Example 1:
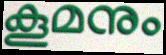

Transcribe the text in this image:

കൂമനും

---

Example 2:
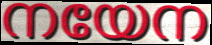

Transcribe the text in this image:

നയേന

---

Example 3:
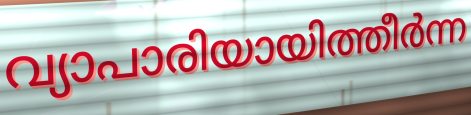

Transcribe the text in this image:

വ്യാപാരിയായിത്തീർന്ന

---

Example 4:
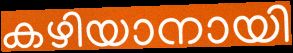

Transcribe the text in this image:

കഴിയാനായി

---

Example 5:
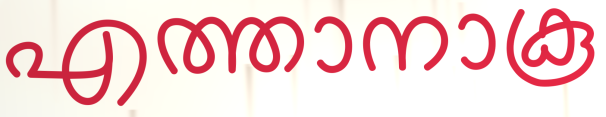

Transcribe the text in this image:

എത്താനാകൂ